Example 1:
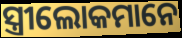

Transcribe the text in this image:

ସ୍ତ୍ରୀଲୋକମାନେ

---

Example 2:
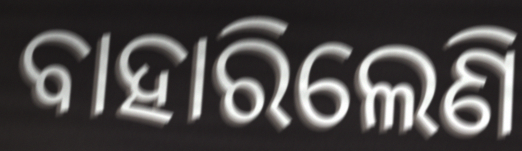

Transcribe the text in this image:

ବାହାରିଲେଣି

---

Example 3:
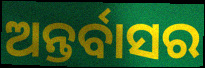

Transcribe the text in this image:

ଅନ୍ତର୍ବାସର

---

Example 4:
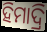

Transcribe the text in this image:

ହିମାଦ୍ରି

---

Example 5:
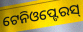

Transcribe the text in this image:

ଟେନିଓପ୍ଟେରସ୍